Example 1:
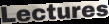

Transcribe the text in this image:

Lectures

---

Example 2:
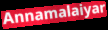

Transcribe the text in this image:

Annamalaiyar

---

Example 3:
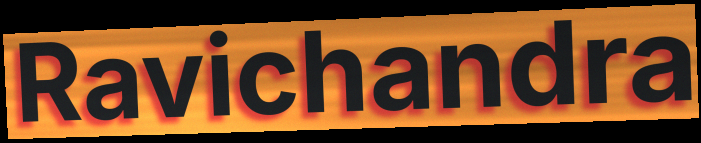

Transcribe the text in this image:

Ravichandra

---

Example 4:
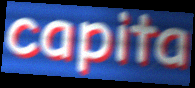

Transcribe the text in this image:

capita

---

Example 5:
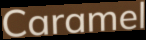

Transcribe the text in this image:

Caramel